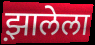
झ़ालेला